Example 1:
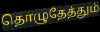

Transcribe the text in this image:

தொழுதேத்தும்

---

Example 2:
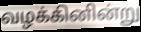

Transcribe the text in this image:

வழக்கினின்று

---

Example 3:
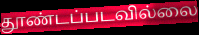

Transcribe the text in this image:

தூண்டப்படவில்லை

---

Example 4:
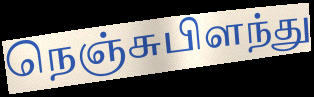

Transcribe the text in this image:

நெஞ்சுபிளந்து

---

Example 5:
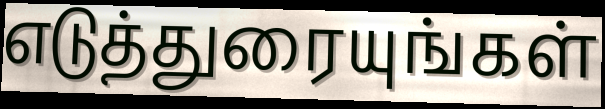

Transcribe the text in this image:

எடுத்துரையுங்கள்